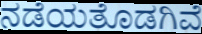
ನಡೆಯತೊಡಗಿವೆ